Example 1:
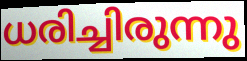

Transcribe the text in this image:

ധരിച്ചിരുന്നു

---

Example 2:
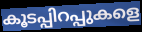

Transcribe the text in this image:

കൂടപ്പിറപ്പുകളെ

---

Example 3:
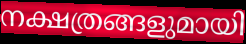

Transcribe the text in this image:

നക്ഷത്രങ്ങളുമായി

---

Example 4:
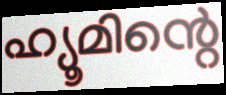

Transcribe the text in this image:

ഹ്യൂമിന്റെ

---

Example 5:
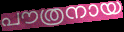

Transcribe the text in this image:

പൗത്രനായ